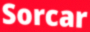
Sorcar